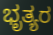
ಭೃತ್ಯರ